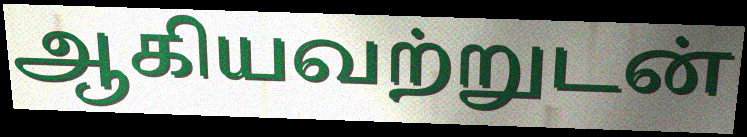
ஆகியவற்றுடன்